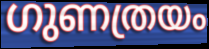
ഗുണത്രയം